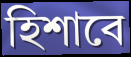
হিশাবে